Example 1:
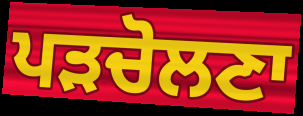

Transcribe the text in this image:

ਪੜਚੋਲਣਾ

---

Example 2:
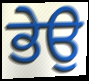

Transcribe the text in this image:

ਭੇਉ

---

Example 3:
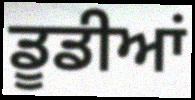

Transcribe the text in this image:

ਡੂਡੀਆਂ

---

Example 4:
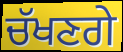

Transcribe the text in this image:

ਚੱਖਣਗੇ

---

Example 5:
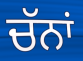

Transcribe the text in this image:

ਚੱਨਾਂ